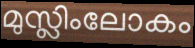
മുസ്ലിംലോകം